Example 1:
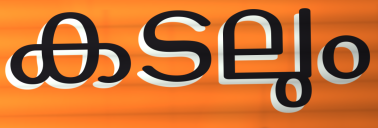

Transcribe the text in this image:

കടലും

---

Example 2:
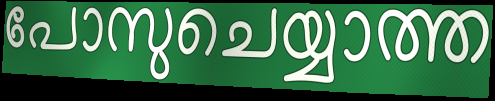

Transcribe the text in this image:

പോസുചെയ്യാത്ത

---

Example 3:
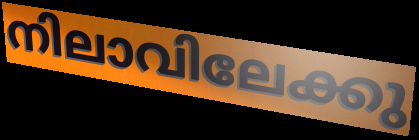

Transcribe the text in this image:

നിലാവിലേക്കു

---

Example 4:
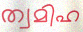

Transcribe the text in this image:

ത്വമിഹ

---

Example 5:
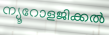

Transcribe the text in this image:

ന്യൂറോളജിക്കൽ